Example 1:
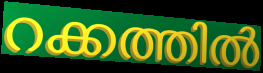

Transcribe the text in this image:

റക്കത്തിൽ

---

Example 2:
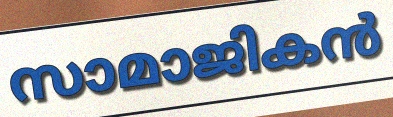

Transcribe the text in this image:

സാമാജികൻ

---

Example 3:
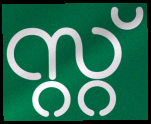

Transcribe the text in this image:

സ്റ്റ്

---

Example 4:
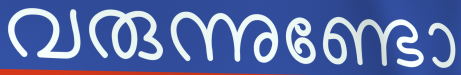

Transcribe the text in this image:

വരുന്നുണ്ടോ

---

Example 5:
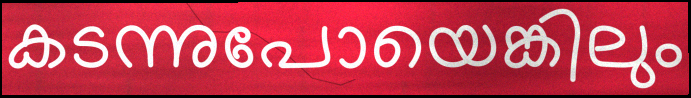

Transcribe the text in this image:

കടന്നുപോയെങ്കിലും